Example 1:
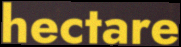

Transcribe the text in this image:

hectare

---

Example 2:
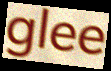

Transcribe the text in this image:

glee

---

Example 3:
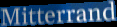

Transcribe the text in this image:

Mitterrand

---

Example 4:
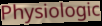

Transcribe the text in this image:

Physiologic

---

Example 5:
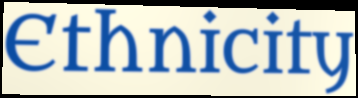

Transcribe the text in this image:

Ethnicity